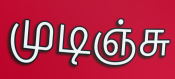
முடிஞ்சு